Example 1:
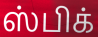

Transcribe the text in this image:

ஸ்பிக்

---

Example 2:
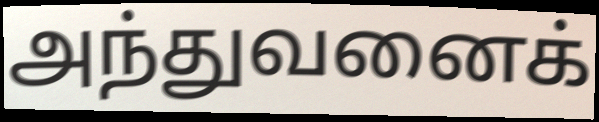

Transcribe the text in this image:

அந்துவனைக்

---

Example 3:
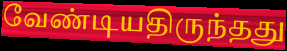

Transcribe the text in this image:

வேண்டியதிருந்தது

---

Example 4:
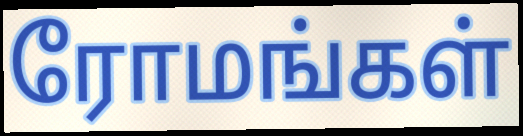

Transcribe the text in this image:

ரோமங்கள்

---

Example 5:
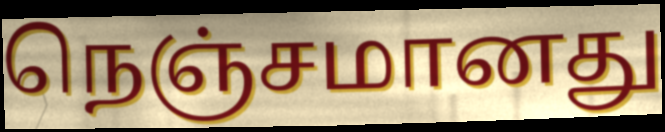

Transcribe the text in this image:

நெஞ்சமானது